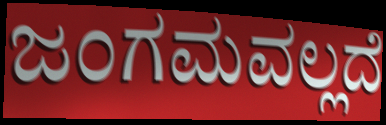
ಜಂಗಮವಲ್ಲದೆ